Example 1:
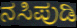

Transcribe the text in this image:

ನಸಿಪುಡಿ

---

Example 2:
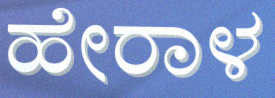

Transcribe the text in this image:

ಹೇರಾಳ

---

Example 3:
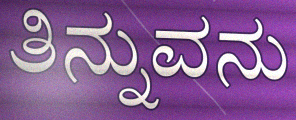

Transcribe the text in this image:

ತಿನ್ನುವನು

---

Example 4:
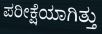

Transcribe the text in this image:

ಪರೀಕ್ಷೆಯಾಗಿತ್ತು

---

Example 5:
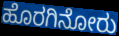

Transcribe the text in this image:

ಹೊರಗಿನೋರು